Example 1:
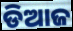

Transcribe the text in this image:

ଡିଆଜ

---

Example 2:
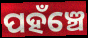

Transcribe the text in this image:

ପହଁଞ୍ଚେ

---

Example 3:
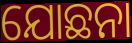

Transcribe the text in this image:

ଯୋଛନା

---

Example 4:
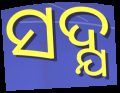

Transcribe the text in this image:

ସଦ୍ଯ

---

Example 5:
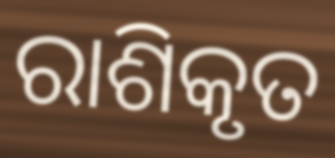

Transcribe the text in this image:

ରାଶିକୃତ